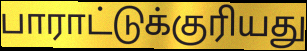
பாராட்டுக்குரியது